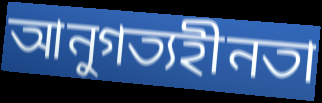
আনুগত্যহীনতা